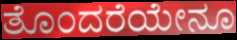
ತೊಂದರೆಯೇನೂ